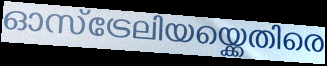
ഓസ്ട്രേലിയയ്ക്കെതിരെ